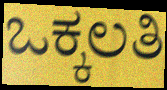
ಒಕ್ಕಲತಿ